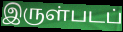
இருள்படப்